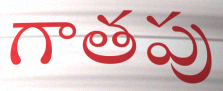
గాతపు